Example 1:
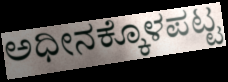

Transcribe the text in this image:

ಅಧೀನಕ್ಕೊಳಪಟ್ಟ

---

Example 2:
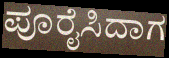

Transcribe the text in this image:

ಪೂರೈಸಿದಾಗ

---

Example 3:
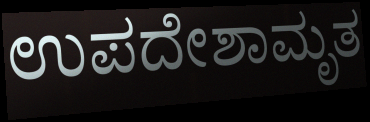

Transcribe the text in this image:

ಉಪದೇಶಾಮೃತ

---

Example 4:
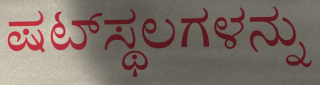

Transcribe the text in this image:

ಷಟ್‌ಸ್ಥಲಗಳನ್ನು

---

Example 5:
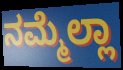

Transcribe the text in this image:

ನಮ್ಮೆಲ್ಲಾ